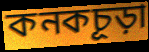
কনকচূড়া